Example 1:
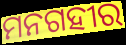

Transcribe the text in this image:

ମନଗହୀର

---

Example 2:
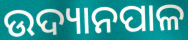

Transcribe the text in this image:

ଉଦ୍ୟାନପାଳ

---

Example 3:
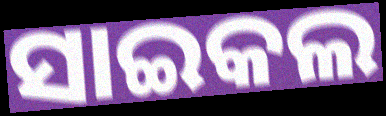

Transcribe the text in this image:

ସାଇକଲ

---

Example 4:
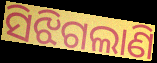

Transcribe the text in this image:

ସିଝିଗଲାଣି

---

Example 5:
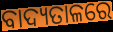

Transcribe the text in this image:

ବାଦ୍ୟତାଳରେ